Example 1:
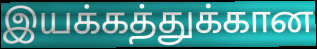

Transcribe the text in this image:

இயக்கத்துக்கான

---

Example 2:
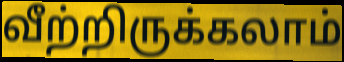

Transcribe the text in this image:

வீற்றிருக்கலாம்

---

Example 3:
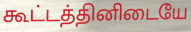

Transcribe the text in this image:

கூட்டத்தினிடையே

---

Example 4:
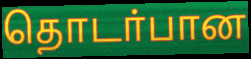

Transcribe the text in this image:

தொடர்பான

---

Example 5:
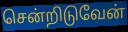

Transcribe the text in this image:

சென்றிடுவேன்